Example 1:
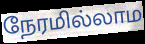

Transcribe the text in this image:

நேரமில்லாம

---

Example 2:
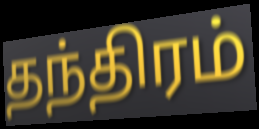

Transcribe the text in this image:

தந்திரம்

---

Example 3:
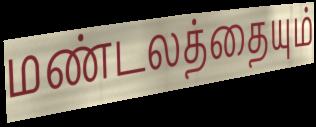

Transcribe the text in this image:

மண்டலத்தையும்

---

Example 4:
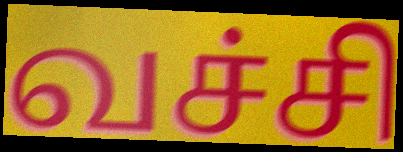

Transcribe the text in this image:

வச்சி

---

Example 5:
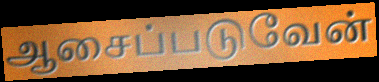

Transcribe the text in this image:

ஆசைப்படுவேன்